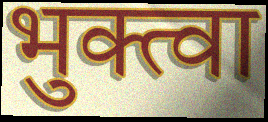
भुक्त्वा